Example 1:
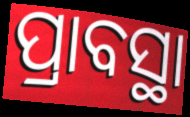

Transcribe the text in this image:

ପ୍ରାବସ୍ଥା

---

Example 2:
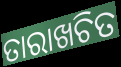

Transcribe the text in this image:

ତାରାଖଚିତ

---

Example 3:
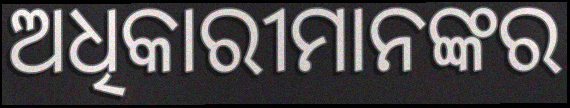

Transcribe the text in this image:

ଅଧିକାରୀମାନଙ୍କର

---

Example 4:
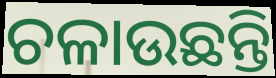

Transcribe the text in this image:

ଚଳାଉଛନ୍ତି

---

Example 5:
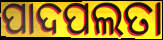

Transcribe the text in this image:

ପାଦପଲତା